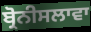
ਬ੍ਰੋਨੀਸਲਾਵਾ